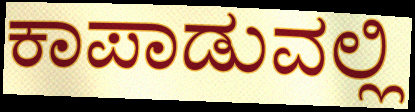
ಕಾಪಾಡುವಲ್ಲಿ